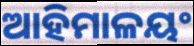
ଆହିମାଳୟଂ